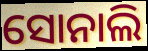
ସୋନାଲି